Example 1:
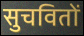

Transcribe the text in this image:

सुचवितों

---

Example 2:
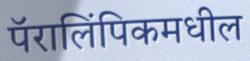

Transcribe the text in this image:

पॅरालिंपिकमधील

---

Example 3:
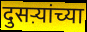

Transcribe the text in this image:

दुसऱ्‍यांच्या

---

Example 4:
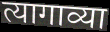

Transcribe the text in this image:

त्यागाव्या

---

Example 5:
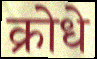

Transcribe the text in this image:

क्रोधे